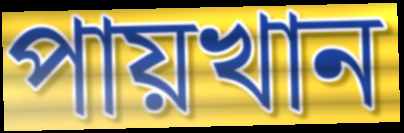
পায়খান